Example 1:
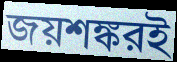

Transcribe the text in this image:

জয়শঙ্করই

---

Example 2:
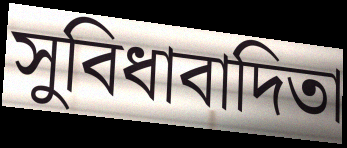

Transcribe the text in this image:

সুবিধাবাদিতা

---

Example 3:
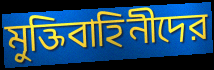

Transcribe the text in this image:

মুক্তিবাহিনীদের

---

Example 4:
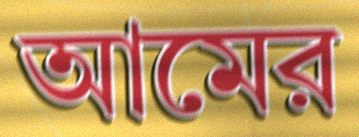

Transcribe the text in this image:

আমের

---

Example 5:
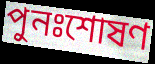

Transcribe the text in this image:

পুনঃশোষণ